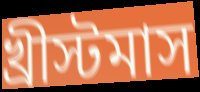
খ্রীস্টমাস